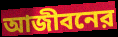
আজীবনের